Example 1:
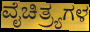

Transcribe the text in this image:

ವೈಚಿತ್ರ್ಯಗಳ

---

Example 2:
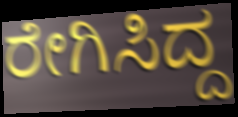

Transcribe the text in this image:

ರೇಗಿಸಿದ್ದ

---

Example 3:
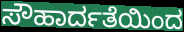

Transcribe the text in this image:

ಸೌಹಾರ್ದತೆಯಿಂದ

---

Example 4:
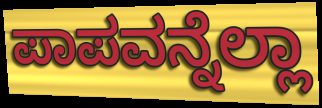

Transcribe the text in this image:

ಪಾಪವನ್ನೆಲ್ಲಾ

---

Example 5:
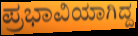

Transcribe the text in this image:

ಪ್ರಭಾವಿಯಾಗಿದ್ದ